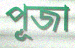
পূজা